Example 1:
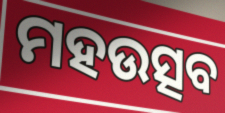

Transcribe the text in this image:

ମହଉତ୍ସବ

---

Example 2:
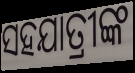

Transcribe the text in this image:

ସହଯାତ୍ରୀଙ୍କ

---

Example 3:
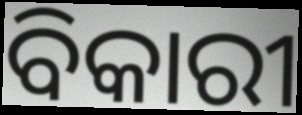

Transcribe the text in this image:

ବିକାରୀ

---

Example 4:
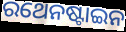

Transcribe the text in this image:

ରଥେନଷ୍ଟାଇନ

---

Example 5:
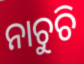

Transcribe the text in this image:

ନାଚୁଚି